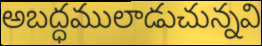
అబద్ధములాడుచున్నవి